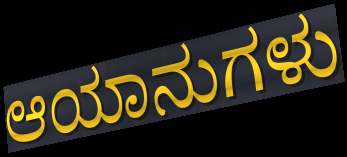
ಆಯಾನುಗಳು